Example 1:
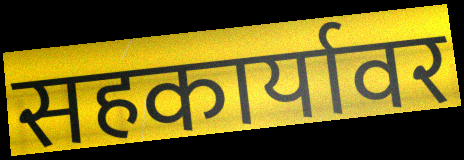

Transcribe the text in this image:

सहकार्यावर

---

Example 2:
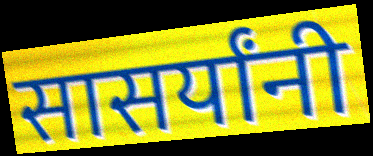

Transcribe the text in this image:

सासर्यांनी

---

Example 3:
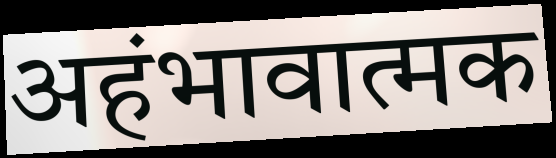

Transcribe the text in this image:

अहंभावात्मक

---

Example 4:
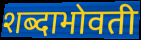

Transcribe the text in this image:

शब्दाभोवती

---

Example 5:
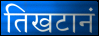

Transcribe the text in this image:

तिखटानं